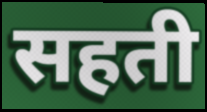
सहती